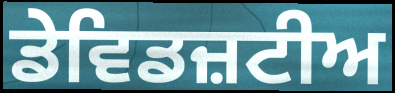
ਡੇਵਿਡਜ਼ਟੀਅ